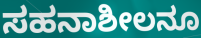
ಸಹನಾಶೀಲನೂ